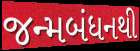
જન્મબંધનથી